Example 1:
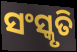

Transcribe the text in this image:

ସଂସ୍କୃତି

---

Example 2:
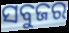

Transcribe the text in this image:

ସବୁଜର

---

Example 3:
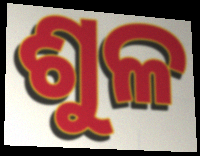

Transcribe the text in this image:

ଶୁଳ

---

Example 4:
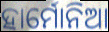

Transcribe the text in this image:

ହାର୍ମୋନିଆ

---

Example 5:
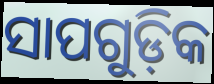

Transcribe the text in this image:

ସାପଗୁଡ଼ିକ